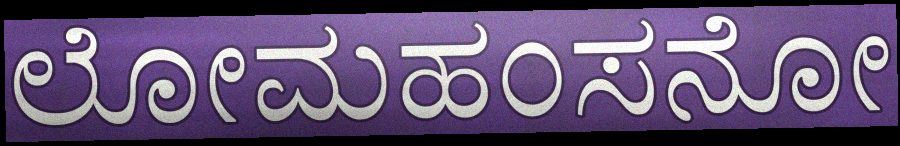
ಲೋಮಹಂಸನೋ